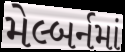
મેલ્બર્નમાં